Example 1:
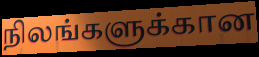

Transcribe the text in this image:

நிலங்களுக்கான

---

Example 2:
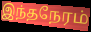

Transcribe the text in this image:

இந்தநேரம்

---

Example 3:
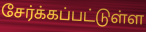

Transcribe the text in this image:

சேர்க்கப்பட்டுள்ள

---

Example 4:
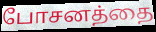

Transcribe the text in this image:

போசனத்தை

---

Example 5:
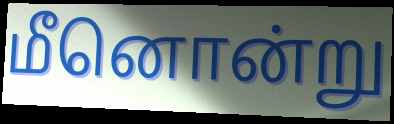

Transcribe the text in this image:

மீனொன்று